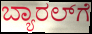
ಬ್ಯಾರಲ್‌ಗೆ